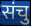
संचु